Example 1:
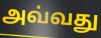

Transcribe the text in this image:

அவ்வது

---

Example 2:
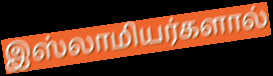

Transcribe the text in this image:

இஸ்லாமியர்களால்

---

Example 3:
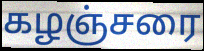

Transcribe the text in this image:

கழஞ்சரை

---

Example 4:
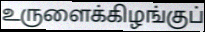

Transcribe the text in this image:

உருளைக்கிழங்குப்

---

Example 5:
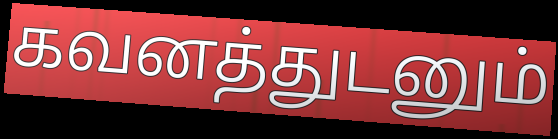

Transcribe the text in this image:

கவனத்துடனும்